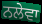
ਨਲੇਵਾ